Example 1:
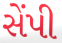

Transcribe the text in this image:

સેંપી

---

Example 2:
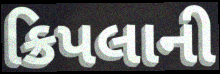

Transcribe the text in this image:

ક્રિપલાની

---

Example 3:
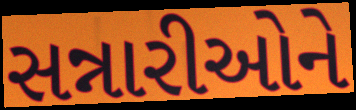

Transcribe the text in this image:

સન્નારીઓને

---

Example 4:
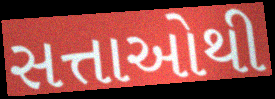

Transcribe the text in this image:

સત્તાઓથી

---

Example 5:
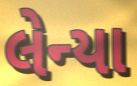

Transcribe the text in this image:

લેન્યા